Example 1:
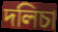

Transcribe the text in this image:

দলিচা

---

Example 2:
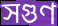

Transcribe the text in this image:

সগুণ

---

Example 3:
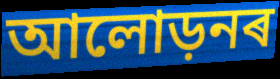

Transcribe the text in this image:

আলোড়নৰ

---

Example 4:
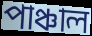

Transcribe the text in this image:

পাঞ্চাল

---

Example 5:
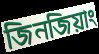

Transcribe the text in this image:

জিনজিয়াং